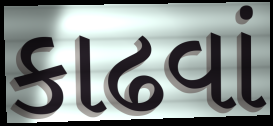
કાઢવાં